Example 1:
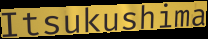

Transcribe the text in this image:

Itsukushima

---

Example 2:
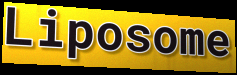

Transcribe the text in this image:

Liposome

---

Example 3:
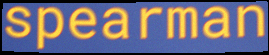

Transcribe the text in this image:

spearman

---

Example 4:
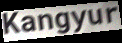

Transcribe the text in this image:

Kangyur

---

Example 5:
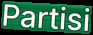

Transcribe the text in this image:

Partisi